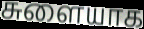
சுளையாக